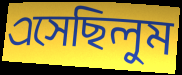
এসেছিলুম